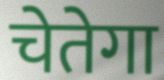
चेतेगा